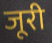
जूरी